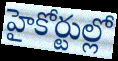
హైకోర్టుల్లో